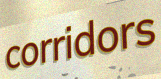
corridors